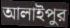
আলাইপুর